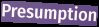
Presumption